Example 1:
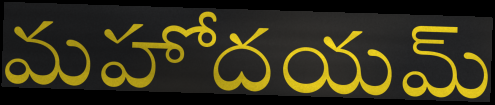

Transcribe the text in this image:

మహోదయమ్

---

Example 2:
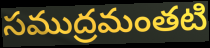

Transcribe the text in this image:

సముద్రమంతటి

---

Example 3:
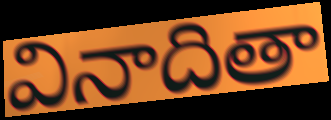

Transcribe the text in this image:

వినాదితా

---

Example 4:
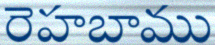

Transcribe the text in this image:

రెహబాము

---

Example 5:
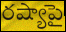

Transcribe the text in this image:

రష్యాపై